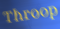
Throop